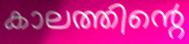
കാലത്തിന്റെ